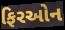
ફિરઓન